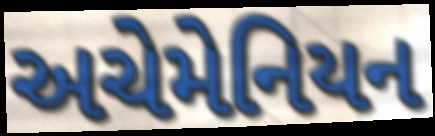
અચેમેનિયન